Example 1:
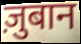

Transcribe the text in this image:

ज़ुबान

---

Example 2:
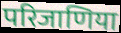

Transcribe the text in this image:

परिजाणिया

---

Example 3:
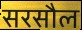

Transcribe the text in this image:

सरसौल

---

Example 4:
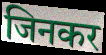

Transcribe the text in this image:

जिनकर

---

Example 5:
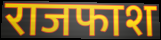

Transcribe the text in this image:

राजफाश